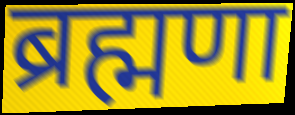
ब्रह्मणा